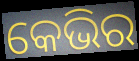
କେଭିର